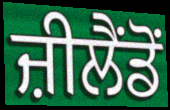
ਜ਼ੀਲੈਂਡੋਂ